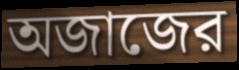
অজাজের